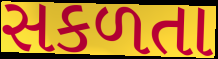
સકળતા